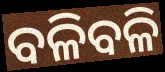
ବଳିବଳି